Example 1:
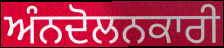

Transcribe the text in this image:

ਅੰਨਦੋਲਨਕਾਰੀ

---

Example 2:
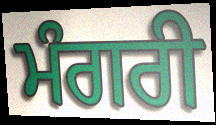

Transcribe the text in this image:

ਮੰਗਰੀ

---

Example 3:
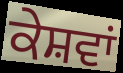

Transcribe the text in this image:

ਕੇਸ਼ਵਾਂ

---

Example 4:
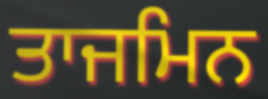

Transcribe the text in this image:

ਤਾਜਮਿਨ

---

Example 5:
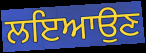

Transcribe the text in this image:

ਲਇਆਉਣ